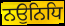
ਨਉਨਿਧਿ